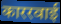
काररवाई